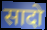
सादो